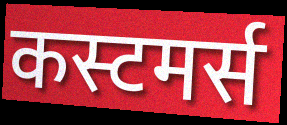
कस्टमर्स